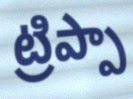
ట్రిప్పా